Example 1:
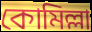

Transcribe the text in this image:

কোমিল্লা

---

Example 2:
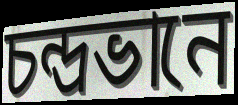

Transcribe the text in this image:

চন্দ্ৰভানে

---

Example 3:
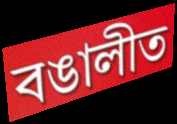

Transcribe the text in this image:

বঙালীত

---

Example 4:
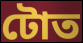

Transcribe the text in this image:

টোত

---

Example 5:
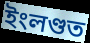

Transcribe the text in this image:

ইংলণ্ডত